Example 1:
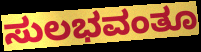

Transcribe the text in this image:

ಸುಲಭವಂತೂ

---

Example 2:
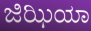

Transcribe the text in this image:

ಜಿಝಿಯಾ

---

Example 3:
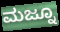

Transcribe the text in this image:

ಮಜ್ನೂ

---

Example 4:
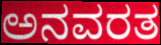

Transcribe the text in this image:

ಅನವರತ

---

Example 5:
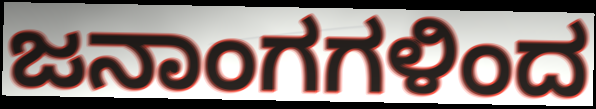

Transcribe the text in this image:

ಜನಾಂಗಗಳಿಂದ